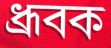
ধ্রূবক